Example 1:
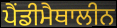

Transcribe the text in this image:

ਪੈਂਡੀਮੈਥਾਲੀਨ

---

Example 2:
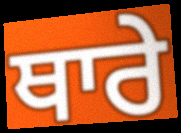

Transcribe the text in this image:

ਥਾਰੇ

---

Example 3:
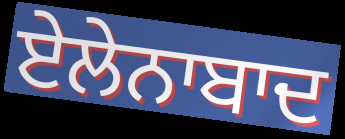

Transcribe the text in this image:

ਏਲੇਨਾਬਾਦ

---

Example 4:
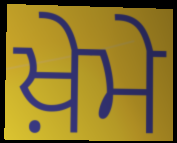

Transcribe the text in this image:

ਖ਼ੇਮੇ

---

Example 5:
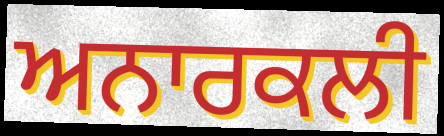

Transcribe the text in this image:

ਅਨਾਰਕਲੀ